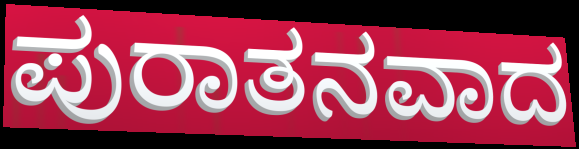
ಪುರಾತನವಾದ